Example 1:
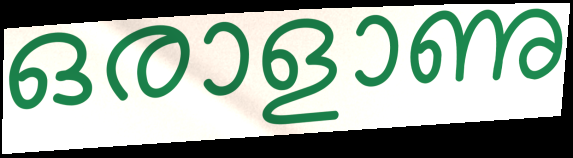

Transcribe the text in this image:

ഒരാളാണു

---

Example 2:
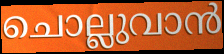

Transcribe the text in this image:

ചൊല്ലുവാൻ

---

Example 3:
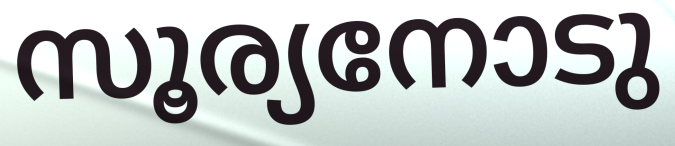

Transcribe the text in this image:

സൂര്യനോടു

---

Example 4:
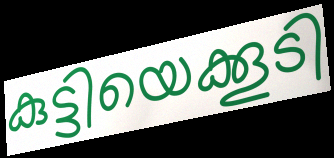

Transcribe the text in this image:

കുട്ടിയെക്കൂടി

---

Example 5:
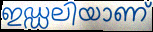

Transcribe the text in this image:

ഇഡ്ഡലിയാണ്